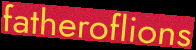
fatheroflions